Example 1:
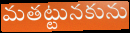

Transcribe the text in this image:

మతట్టునకును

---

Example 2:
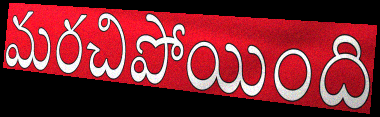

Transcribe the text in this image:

మరచిపోయింది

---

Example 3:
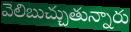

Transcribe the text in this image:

వెలిబుచ్చుతున్నారు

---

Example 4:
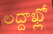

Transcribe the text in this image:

లద్దాఖ్లో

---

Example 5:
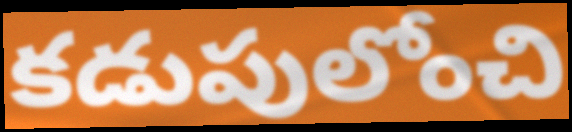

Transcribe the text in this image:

కడుపులోంచి